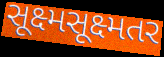
સૂક્ષ્મસૂક્ષ્મતર